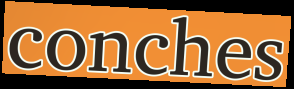
conches